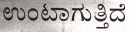
ಉಂಟಾಗುತ್ತಿದೆ